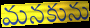
మనకును